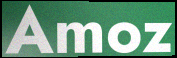
Amoz